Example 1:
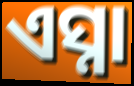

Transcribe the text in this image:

ଏସ୍ନା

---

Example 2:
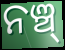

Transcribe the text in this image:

ନଞ୍ଚ୍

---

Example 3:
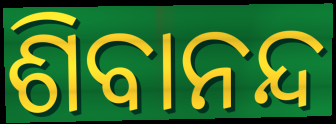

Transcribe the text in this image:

ଶିବାନନ୍ଦ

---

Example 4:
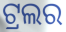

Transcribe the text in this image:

ଟ୍ରଲର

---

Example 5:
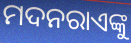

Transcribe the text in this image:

ମଦନରାଏଙ୍କୁ